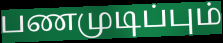
பணமுடிப்பும்